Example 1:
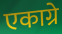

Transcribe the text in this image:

एकाग्रे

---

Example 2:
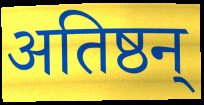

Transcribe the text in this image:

अतिष्ठन्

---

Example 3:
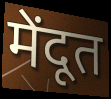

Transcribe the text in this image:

मेंदूत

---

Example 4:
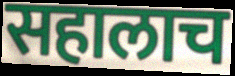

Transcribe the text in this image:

सहालाच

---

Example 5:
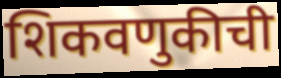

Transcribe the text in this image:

शिकवणुकीची